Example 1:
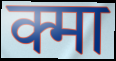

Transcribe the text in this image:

क्मा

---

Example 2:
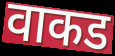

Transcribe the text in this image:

वाकड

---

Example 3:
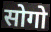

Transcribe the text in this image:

सोगो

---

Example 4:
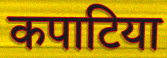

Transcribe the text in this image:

कपाटिया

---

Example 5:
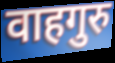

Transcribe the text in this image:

वाहगुरु